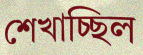
শেখাচ্ছিল